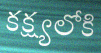
కక్ష్యలోకి